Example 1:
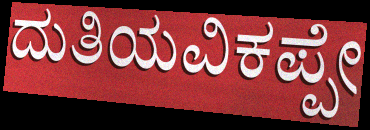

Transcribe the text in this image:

ದುತಿಯವಿಕಪ್ಪೇ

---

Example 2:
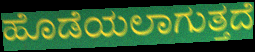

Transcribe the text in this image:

ಹೊಡೆಯಲಾಗುತ್ತದೆ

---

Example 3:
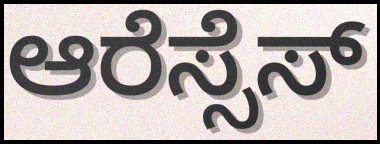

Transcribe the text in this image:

ಆರೆಸ್ಸೆಸ್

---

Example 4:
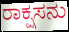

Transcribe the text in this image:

ರಾಕ್ಷಸನು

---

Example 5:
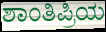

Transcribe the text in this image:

ಶಾಂತಿಪ್ರಿಯ